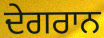
ਦੇਗਰਾਨ